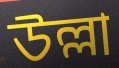
উল্লা